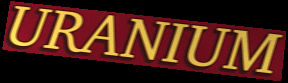
URANIUM